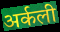
अर्कली